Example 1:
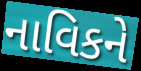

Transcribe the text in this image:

નાવિકને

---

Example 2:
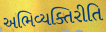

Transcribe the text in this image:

અભિવ્યક્તિરીતિ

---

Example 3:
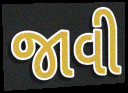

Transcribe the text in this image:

જાવી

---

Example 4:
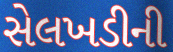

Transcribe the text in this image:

સેલખડીની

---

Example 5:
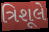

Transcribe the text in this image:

ત્રિશૂલે